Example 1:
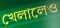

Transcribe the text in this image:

খেলালেও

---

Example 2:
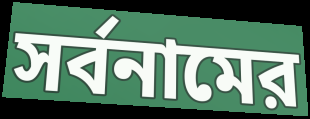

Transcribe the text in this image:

সর্বনামের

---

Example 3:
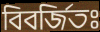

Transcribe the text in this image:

বিবর্জিতঃ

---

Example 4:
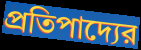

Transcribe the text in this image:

প্রতিপাদ্যের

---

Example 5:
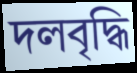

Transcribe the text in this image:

দলবৃদ্ধি